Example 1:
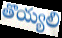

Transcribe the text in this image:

తొయ్యలి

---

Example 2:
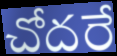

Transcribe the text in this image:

చోదరే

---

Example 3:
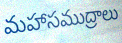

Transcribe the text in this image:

మహాసముద్రాలు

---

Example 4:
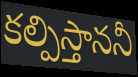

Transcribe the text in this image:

కల్పిస్తాననీ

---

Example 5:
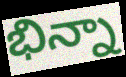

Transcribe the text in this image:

భిన్నా